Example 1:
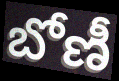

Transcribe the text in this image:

బోణీ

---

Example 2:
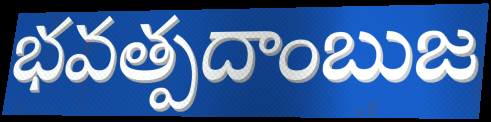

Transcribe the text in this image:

భవత్పదాంబుజ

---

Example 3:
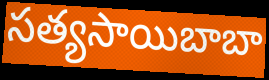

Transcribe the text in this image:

సత్యసాయిబాబా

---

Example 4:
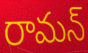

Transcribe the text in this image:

రామన్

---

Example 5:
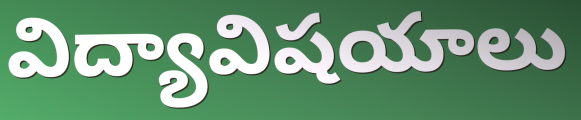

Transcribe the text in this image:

విద్యావిషయాలు